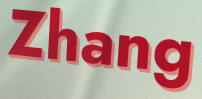
Zhang